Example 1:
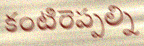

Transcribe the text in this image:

కంటిరెప్పల్ని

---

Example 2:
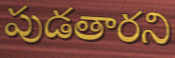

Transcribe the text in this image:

పుడతారని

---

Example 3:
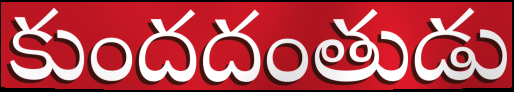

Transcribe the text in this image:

కుందదంతుడు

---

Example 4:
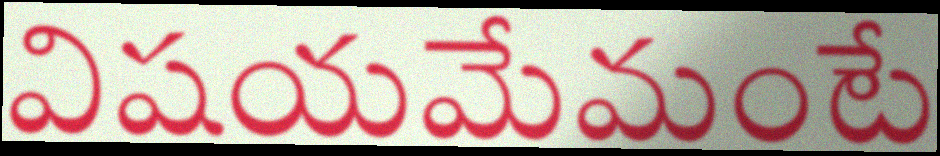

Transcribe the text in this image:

విషయమేమంటే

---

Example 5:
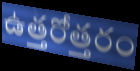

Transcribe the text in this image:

ఉత్తరోత్తరం